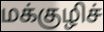
மக்குழிச்